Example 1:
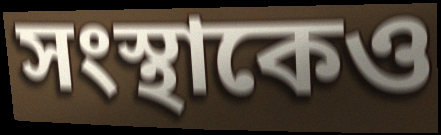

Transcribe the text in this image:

সংস্থাকেও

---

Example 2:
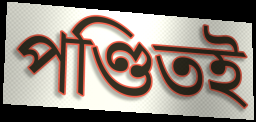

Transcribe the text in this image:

পণ্ডিতই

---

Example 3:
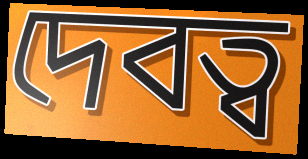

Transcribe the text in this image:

দেবত্ব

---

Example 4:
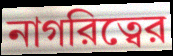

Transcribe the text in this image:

নাগরিত্বের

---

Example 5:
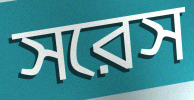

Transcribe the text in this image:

সরেস